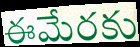
ఈమేరకు